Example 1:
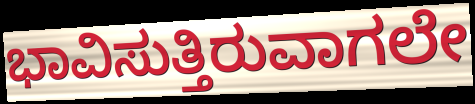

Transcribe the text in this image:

ಭಾವಿಸುತ್ತಿರುವಾಗಲೇ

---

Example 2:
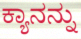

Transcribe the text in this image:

ಕ್ಯಾನನ್ನು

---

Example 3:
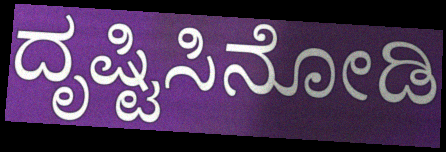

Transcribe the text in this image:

ದೃಷ್ಟಿಸಿನೋಡಿ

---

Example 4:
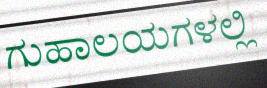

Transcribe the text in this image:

ಗುಹಾಲಯಗಳಲ್ಲಿ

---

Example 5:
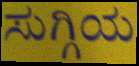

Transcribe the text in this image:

ಸುಗ್ಗಿಯ